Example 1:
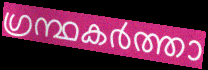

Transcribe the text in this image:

ഗ്രന്ഥകർത്താ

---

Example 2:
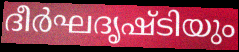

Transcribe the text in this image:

ദീർഘദൃഷ്ടിയും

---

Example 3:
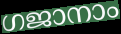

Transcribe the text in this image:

ഗജാനാം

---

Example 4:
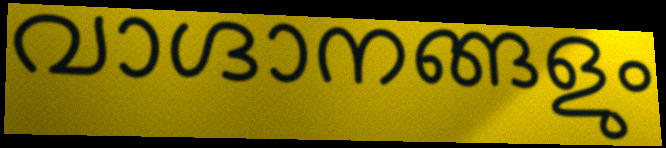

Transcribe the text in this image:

വാഗ്ദാനങ്ങളും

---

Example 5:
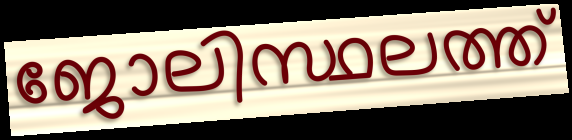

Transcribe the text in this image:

ജോലിസ്ഥലത്ത്